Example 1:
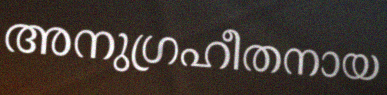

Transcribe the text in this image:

അനുഗ്രഹീതനായ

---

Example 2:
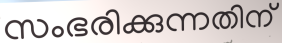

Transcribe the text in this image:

സംഭരിക്കുന്നതിന്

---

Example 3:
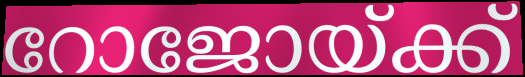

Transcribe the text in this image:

റോജോയ്ക്ക്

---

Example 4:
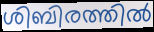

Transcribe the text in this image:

ശിബിരത്തിൽ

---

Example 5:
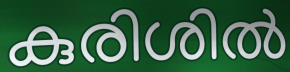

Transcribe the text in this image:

കുരിശിൽ